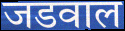
जडवाल